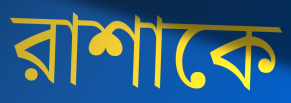
রাশাকে